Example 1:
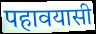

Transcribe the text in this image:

पहावयासी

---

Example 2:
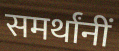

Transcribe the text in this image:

समर्थांनीं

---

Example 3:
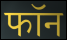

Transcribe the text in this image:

फॉन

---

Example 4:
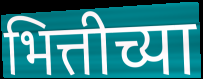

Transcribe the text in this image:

भित्तीच्या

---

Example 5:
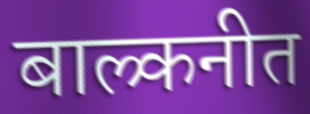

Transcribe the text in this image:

बाल्कनीत